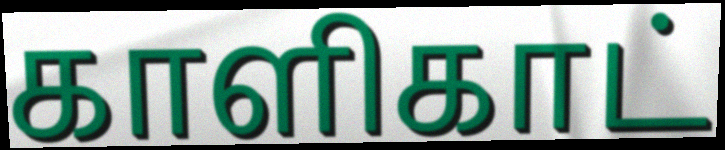
காளிகாட்